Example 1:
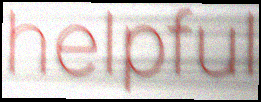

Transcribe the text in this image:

helpful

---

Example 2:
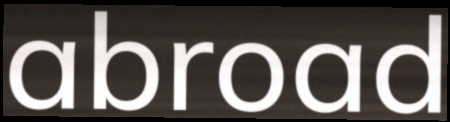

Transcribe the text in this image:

abroad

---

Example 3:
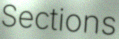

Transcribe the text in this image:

Sections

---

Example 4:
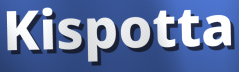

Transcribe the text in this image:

Kispotta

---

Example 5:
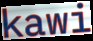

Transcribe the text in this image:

kawi